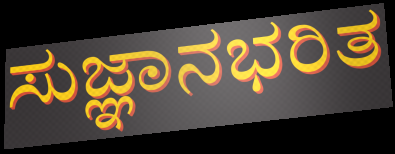
ಸುಜ್ಞಾನಭರಿತ